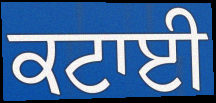
ਕਟਾਈ